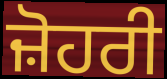
ਜ਼ੋਹਰੀ